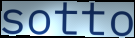
sotto